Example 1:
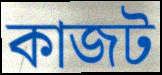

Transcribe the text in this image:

কাজট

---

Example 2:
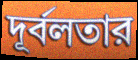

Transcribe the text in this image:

দূর্বলতার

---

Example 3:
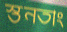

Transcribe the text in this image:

স্তনতাং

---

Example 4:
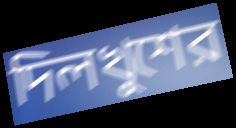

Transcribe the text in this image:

দিলখুশের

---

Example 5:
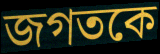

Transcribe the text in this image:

জগতকে